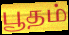
பூதம்